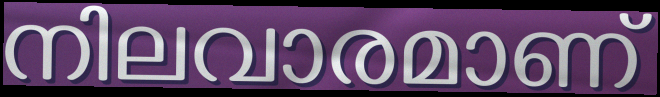
നിലവാരമാണ്